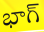
భాగ్